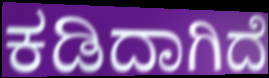
ಕಡಿದಾಗಿದೆ